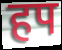
हप